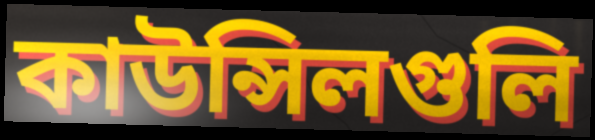
কাউন্সিলগুলি